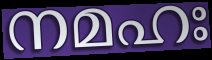
നമഹഃ